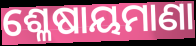
ଶ୍ଳେଷାୟମାଣା